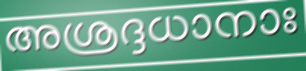
അശ്രദ്ദധാനാഃ